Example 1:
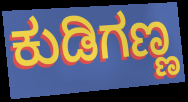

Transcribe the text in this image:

ಕುಡಿಗಣ್ಣ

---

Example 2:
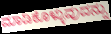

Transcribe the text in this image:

ಮಾಡಿಕೊಳ್ಳುವುದನ್ನು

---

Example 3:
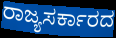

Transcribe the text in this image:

ರಾಜ್ಯಸರ್ಕಾರದ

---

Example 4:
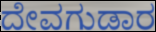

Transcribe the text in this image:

ದೇವಗುಡಾರ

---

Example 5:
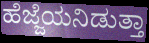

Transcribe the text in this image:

ಹೆಜ್ಜೆಯನಿಡುತ್ತಾ